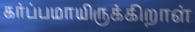
கர்ப்பமாயிருக்கிறாள்